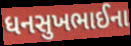
ધનસુખભાઈના